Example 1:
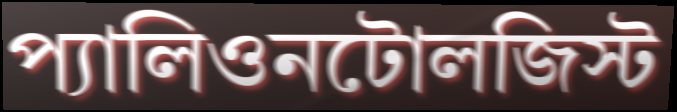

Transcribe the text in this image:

প্যালিওনটোলজিস্ট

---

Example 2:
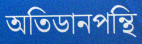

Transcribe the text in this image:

অতিডানপন্থি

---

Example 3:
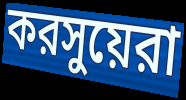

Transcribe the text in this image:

করসুয়েরা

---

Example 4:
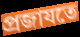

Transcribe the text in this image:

প্রজাযতে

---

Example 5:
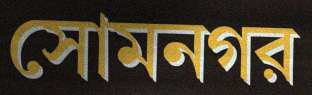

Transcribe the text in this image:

সোমনগর